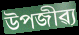
উপজীৱ্য